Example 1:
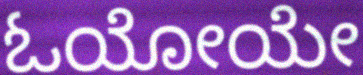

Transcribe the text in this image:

ಓಯೋಯೇ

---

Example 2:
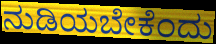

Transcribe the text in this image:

ನುಡಿಯಬೇಕೆಂದು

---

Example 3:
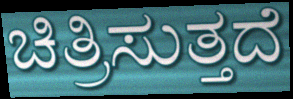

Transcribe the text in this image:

ಚಿತ್ರಿಸುತ್ತದೆ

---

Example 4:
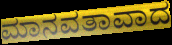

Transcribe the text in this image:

ಮಾನವತಾವಾದ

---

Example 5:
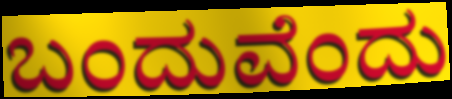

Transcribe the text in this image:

ಬಂದುವೆಂದು